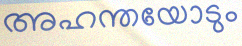
അഹന്തയോടും